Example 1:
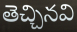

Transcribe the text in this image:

తెచ్చినవి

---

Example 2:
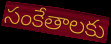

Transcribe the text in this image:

సంకేతాలకు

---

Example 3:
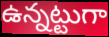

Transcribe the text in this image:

ఉన్నట్టుగా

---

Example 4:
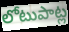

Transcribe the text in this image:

లోటుపాట్ల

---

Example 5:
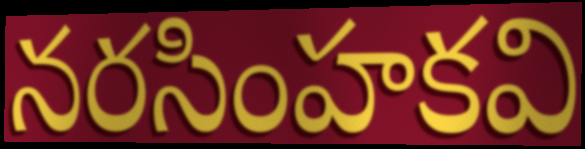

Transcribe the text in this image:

నరసింహకవి